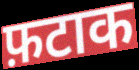
फ़टाक